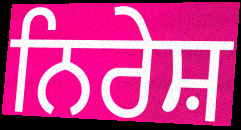
ਨਿਰੇਸ਼